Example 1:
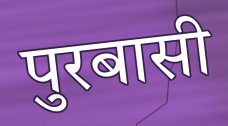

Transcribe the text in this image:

पुरबासी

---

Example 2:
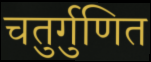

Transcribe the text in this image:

चतुर्गुणित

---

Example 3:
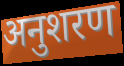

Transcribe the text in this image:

अनुशरण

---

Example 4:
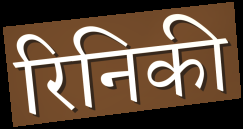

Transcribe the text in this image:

रिनिकी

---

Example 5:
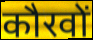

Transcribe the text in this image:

कौरवों